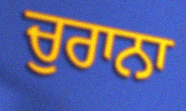
ਚੁਰਾਨਾ